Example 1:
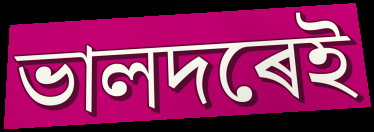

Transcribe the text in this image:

ভালদৰেই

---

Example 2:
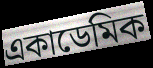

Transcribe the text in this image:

একাডেমিক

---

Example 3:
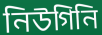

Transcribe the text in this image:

নিউগিনি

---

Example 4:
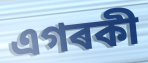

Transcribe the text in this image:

এগৰকী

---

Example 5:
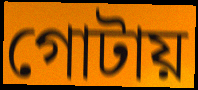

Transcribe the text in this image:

গোটায়